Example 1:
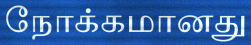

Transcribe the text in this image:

நோக்கமானது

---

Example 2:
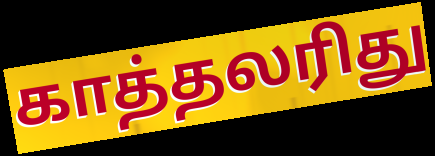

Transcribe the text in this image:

காத்தலரிது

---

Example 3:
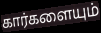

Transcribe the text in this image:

கார்களையும்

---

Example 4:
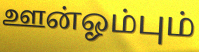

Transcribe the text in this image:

ஊன்ஓம்பும்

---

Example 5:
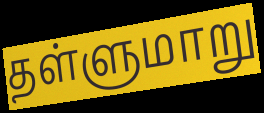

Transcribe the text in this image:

தள்ளுமாறு